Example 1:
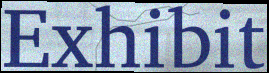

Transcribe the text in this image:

Exhibit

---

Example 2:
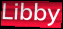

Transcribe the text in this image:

Libby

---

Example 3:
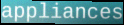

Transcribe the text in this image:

appliances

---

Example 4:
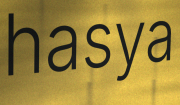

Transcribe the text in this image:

hasya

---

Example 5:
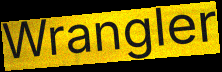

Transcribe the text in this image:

Wrangler